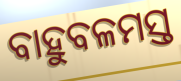
ବାହୁବଳମସ୍ତ